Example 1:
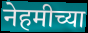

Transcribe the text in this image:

नेहमीच्या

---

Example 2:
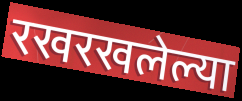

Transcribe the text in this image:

रखरखलेल्या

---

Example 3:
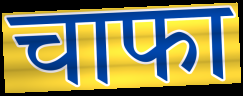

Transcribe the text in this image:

चाफा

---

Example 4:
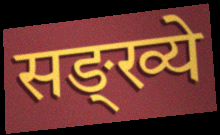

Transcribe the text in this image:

सङ्ख्ये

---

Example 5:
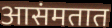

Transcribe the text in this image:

आसंमतात